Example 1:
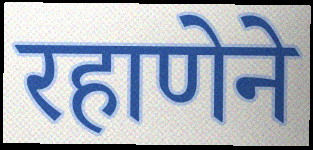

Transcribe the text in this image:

रहाणेने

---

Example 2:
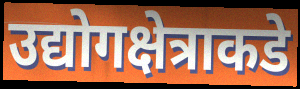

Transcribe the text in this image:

उद्योगक्षेत्राकडे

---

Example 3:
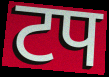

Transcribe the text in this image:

टप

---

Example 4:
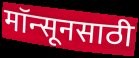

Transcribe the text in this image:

मॉन्सूनसाठी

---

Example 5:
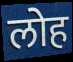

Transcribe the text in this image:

लोह